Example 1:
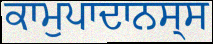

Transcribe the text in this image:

ਕਾਮੁਪਾਦਾਨਸ੍ਸ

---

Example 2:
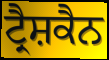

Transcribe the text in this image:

ਟ੍ਰੈਸ਼ਕੈਨ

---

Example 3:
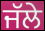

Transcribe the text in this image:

ਜੱਲੇ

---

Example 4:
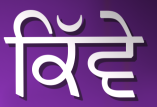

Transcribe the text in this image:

ਕਿੱਵੇ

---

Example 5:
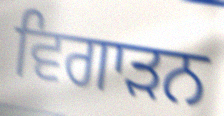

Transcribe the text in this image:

ਵਿਗਾੜਨ